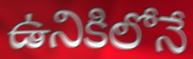
ఉనికిలోనే